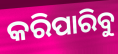
କରିପାରିବୁ